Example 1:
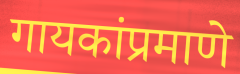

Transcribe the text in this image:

गायकांप्रमाणे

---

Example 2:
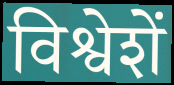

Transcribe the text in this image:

विश्वेशें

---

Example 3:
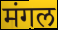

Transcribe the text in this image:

मंगल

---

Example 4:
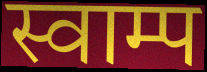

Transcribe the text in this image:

स्वाम्प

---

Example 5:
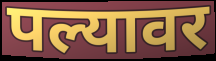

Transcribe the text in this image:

पल्यावर